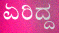
ಏರಿದ್ದ